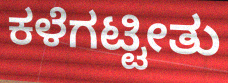
ಕಳೆಗಟ್ಟೀತು